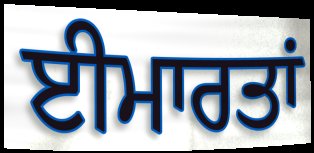
ਈਮਾਰਤਾਂ